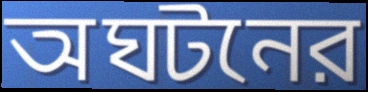
অঘটনের